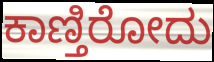
ಕಾಣ್ತಿರೋದು